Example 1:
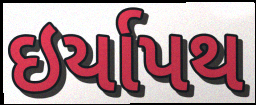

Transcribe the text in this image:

ઇર્યાપથ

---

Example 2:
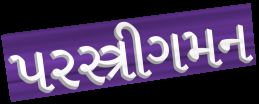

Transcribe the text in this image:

પરસ્ત્રીગમન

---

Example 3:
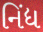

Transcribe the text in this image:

નિંદ્ય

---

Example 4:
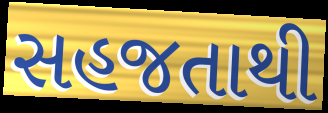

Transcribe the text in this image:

સહજતાથી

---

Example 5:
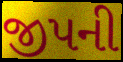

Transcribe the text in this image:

જીપની